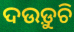
ଦଉଡ଼ୁଚି